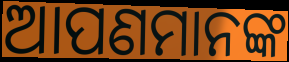
ଆପଣମାନଙ୍କ